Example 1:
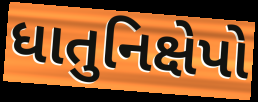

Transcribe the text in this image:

ધાતુનિક્ષેપો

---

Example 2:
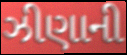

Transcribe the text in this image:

ઝીણાની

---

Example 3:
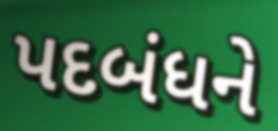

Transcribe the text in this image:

પદબંધને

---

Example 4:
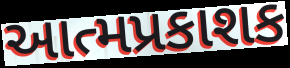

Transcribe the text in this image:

આત્મપ્રકાશક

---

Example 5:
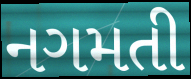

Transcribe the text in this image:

નગમતી